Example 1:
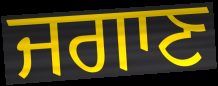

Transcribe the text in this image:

ਜਗਾਣ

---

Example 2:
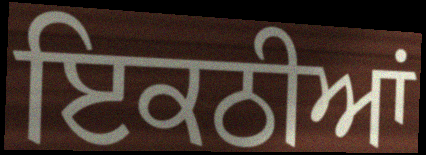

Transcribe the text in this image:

ਇਕਠੀਆਂ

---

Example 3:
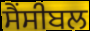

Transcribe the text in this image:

ਸੈਂਸੀਬਲ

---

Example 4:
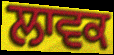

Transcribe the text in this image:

ਲਾਵਕ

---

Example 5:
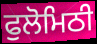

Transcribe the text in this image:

ਫੁਲੋਮਿਠੀ